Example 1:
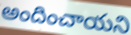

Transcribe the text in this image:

అందించాయని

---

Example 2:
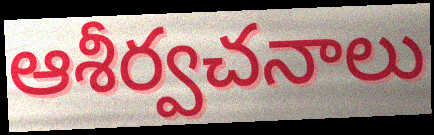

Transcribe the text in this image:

ఆశీర్వచనాలు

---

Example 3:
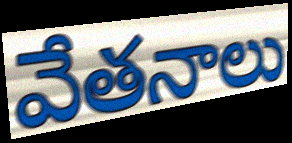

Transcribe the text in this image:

వేతనాలు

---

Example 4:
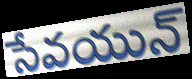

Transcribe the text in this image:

సేవయున్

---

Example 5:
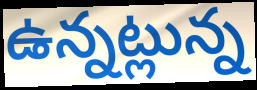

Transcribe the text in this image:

ఉన్నట్లున్న